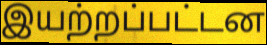
இயற்றப்பட்டன